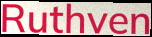
Ruthven